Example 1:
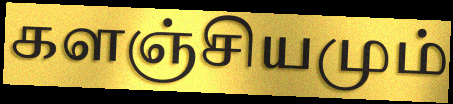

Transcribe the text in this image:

களஞ்சியமும்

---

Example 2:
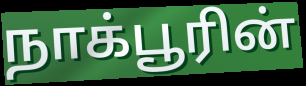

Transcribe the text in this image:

நாக்பூரின்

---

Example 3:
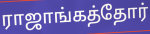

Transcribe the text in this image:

ராஜாங்கத்தோர்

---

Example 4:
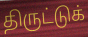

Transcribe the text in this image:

திருட்டுக்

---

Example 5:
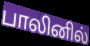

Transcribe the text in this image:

பாலினில்